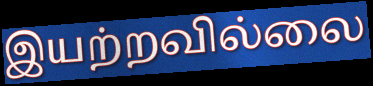
இயற்றவில்லை